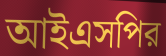
আইএসপির